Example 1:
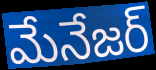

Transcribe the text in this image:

మేనేజర్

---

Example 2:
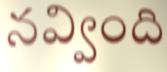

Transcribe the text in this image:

నవ్వింది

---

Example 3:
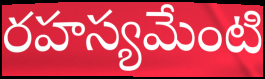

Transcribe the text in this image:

రహస్యమేంటి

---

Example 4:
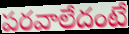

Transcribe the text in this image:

పరవాలేదంటే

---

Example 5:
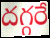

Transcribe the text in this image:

దగ్గరే